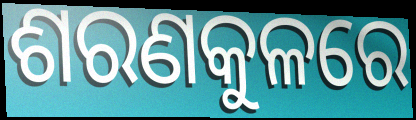
ଶରଣକୁଳରେ